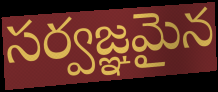
సర్వజ్ఞమైన